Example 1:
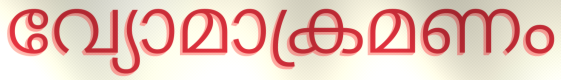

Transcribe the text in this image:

വ്യോമാക്രമണം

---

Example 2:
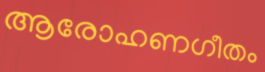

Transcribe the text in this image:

ആരോഹണഗീതം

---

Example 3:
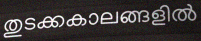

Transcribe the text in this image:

തുടക്കകാലങ്ങളിൽ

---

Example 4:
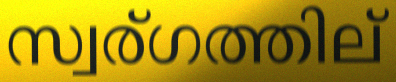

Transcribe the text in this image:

സ്വര്ഗത്തില്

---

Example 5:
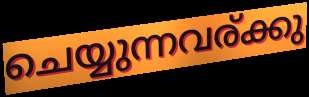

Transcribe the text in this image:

ചെയ്യുന്നവര്ക്കു